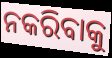
ନକରିବାକୁ